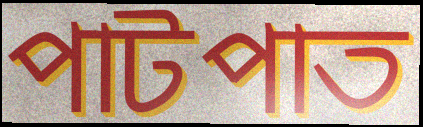
পাটপাত